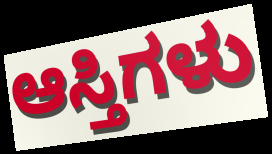
ಆಸ್ತಿಗಳು